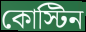
কোস্টিন